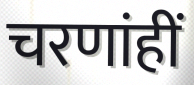
चरणांहीं